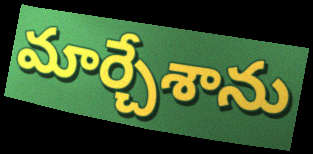
మార్చేశాను